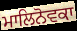
ਮਾਲਿਨੋਵਕਾ